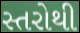
સ્તરોથી